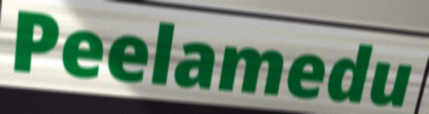
Peelamedu